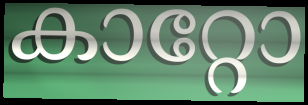
കാറ്റോ